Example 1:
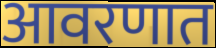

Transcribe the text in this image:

आवरणात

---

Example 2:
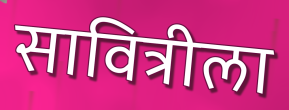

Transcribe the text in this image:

सावित्रीला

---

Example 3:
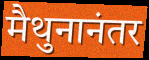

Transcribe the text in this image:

मैथुनानंतर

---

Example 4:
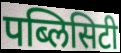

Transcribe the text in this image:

पब्लिसिटी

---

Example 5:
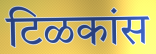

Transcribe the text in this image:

टिळकांस